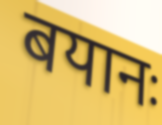
बयानः